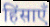
हिंसाएँ